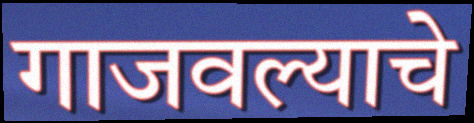
गाजवल्याचे